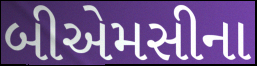
બીએમસીના